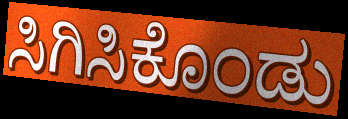
ಸಿಗಿಸಿಕೊಂಡು